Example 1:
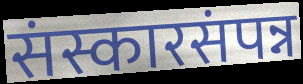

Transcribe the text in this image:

संस्कारसंपन्न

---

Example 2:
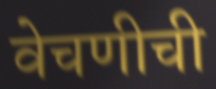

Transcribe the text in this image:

वेचणीची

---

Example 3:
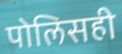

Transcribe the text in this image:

पोलिसही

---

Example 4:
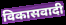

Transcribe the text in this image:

विकासवादी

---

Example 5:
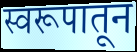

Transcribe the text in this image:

स्वरूपातून